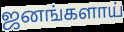
ஜனங்களாய்